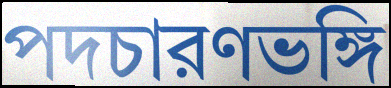
পদচারণভঙ্গি